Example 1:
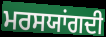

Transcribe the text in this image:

ਮਰਸਯਾਂਗਦੀ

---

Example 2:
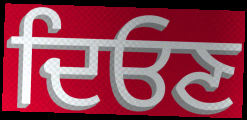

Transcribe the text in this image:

ਦਿਓਣ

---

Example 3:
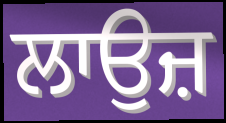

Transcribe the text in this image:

ਲਾਉਜ਼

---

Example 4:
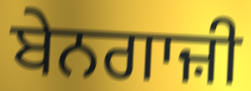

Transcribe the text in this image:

ਬੇਨਗਾਜ਼ੀ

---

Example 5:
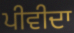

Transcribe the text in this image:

ਪੀਵੀਦਾ